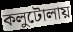
কলুটোলায়